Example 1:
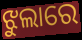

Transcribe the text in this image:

ଝୁଲାରେ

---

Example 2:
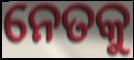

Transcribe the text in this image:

ନେତକୁ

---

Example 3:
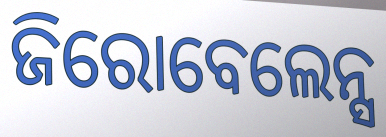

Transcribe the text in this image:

ଜିରୋବେଲେନ୍ସ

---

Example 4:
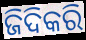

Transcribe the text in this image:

ଜିଦିକରି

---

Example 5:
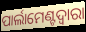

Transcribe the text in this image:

ପାର୍ଲାମେଣ୍ଟଦ୍ୱାରା